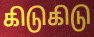
கிடுகிடு